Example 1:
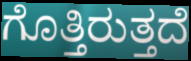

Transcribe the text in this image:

ಗೊತ್ತಿರುತ್ತದೆ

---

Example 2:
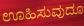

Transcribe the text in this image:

ಊಹಿಸುವುದೂ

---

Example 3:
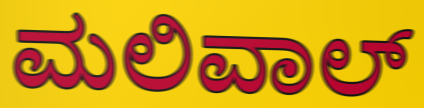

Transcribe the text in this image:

ಮಲಿವಾಲ್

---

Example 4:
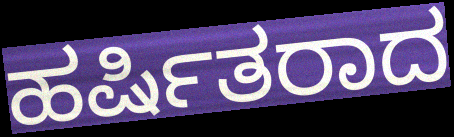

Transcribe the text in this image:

ಹರ್ಷಿತರಾದ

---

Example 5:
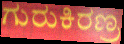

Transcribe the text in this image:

ಗುರುಕಿರಣ್ರ